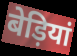
बेड़ियां